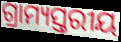
ଗ୍ରାମ୍ୟସ୍ତରୀୟ